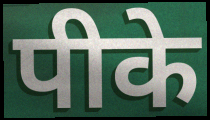
पीके